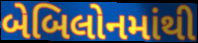
બેબિલોનમાંથી